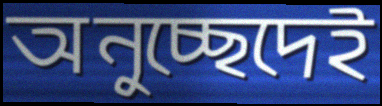
অনুচ্ছেদেই